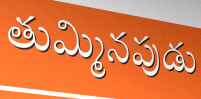
తుమ్మినపుడు